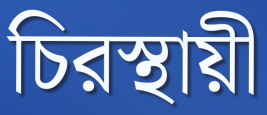
চিরস্থায়ী